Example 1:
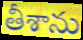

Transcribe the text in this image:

తీశాను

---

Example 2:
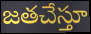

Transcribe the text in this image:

జతచేస్తూ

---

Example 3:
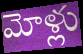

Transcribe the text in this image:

మోళ్లు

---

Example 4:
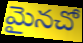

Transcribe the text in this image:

మైనచో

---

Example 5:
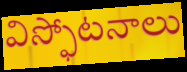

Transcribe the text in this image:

విస్ఫోటనాలు